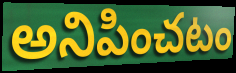
అనిపించటం